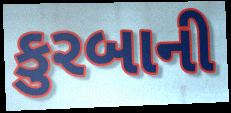
કુરબાની